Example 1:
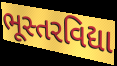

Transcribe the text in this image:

ભૂસ્તરવિદ્યા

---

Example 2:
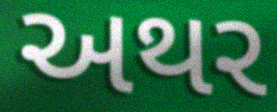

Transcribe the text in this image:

અથર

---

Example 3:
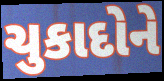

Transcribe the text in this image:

ચુકાદોને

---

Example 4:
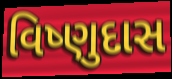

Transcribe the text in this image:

વિષ્ણુદાસ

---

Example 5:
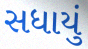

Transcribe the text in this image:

સધાયું